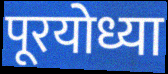
पूरयोध्या